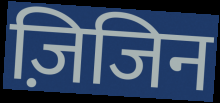
ज़िजिन